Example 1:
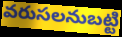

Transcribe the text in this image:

వరుసలనుబట్టి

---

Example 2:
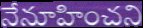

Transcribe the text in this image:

నేనూహించని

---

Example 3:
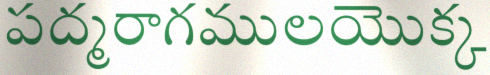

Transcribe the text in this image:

పద్మరాగములయొక్క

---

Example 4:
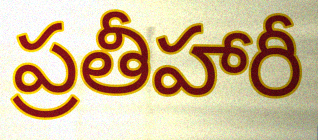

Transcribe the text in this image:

ప్రతీహారీ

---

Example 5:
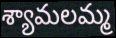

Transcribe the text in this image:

శ్యామలమ్మ